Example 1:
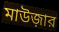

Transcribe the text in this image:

মাউজ়ার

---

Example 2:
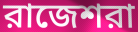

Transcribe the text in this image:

রাজেশরা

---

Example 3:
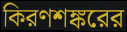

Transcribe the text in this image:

কিরণশঙ্করের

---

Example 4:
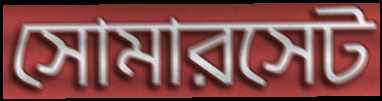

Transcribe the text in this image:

সোমারসেট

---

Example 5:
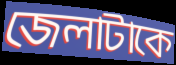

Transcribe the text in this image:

জেলাটাকে